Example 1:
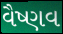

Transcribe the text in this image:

વૈષ્ણવ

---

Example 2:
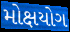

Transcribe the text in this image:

મોક્ષયોગ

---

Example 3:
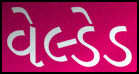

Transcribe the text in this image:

વેલ્ડેડ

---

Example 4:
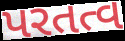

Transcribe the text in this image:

પરતત્વ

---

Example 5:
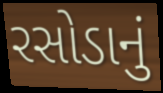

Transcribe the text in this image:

રસોડાનું